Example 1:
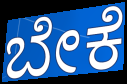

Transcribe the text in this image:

ಬೇಕೆ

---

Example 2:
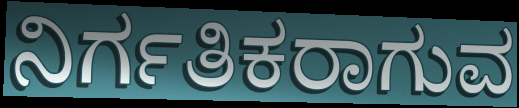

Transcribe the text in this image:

ನಿರ್ಗತಿಕರಾಗುವ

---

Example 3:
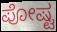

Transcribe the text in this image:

ಪೋಷ್ಟ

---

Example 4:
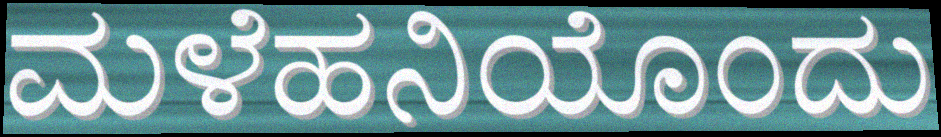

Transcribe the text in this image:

ಮಳೆಹನಿಯೊಂದು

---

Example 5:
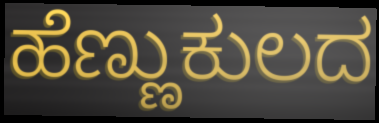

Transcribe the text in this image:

ಹೆಣ್ಣುಕುಲದ